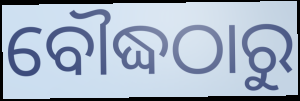
ବୌଦ୍ଧଠାରୁ